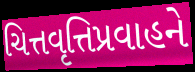
ચિત્તવૃત્તિપ્રવાહને